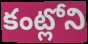
కంట్లోని